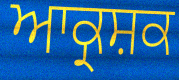
ਆਕ੍ਰਸ਼ਕ